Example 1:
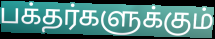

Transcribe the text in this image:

பக்தர்களுக்கும்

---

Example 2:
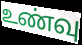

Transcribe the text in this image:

உண்வு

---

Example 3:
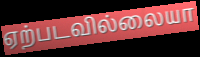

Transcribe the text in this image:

ஏற்படவில்லையா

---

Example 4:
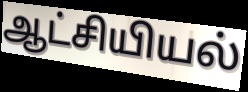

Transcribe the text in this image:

ஆட்சியியல்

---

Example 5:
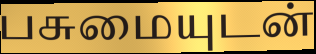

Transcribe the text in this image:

பசுமையுடன்